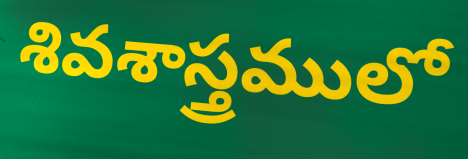
శివశాస్త్రములో